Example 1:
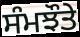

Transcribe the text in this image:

ਸੰਮਝੌਤੇ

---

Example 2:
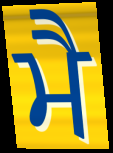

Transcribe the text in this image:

ਮੈ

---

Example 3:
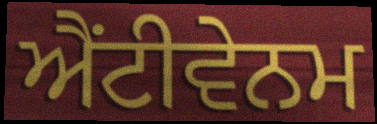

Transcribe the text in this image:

ਐਂਟੀਵੇਨਮ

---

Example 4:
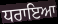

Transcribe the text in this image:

ਧਰਾਇਆ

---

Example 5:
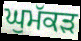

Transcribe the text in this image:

ਘੁਮੱਕੜ